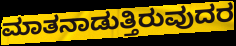
ಮಾತನಾಡುತ್ತಿರುವುದರ